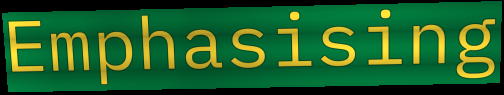
Emphasising